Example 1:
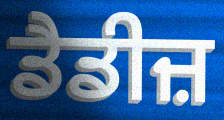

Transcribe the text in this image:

ਡੈਡੀਜ਼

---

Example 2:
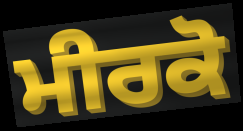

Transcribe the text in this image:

ਮੀਰਕੋ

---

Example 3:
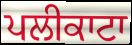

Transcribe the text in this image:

ਪਲੀਕਾਟਾ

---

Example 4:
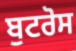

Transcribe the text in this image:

ਬੁਟਰੋਸ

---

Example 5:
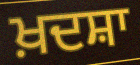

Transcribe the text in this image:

ਖ਼ਦਸ਼ਾ